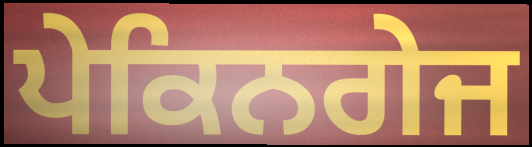
ਪੇਕਿਨਗੇਜ